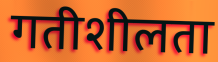
गतीशीलता